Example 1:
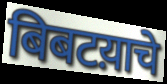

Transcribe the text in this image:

बिबटय़ाचे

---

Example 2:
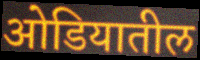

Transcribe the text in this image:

ओडियातील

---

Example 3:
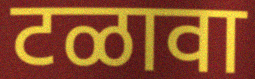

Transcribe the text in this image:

टळावा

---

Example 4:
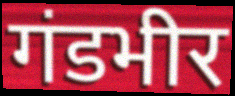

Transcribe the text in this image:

गंडभीर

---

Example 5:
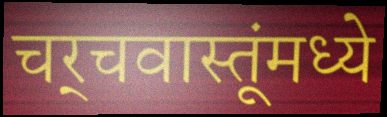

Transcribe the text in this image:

चर्चवास्तूंमध्ये